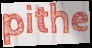
pithe